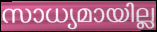
സാധ്യമായില്ല